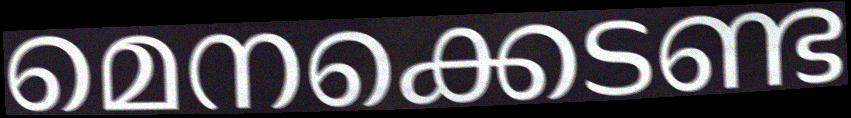
മെനക്കെടണ്ട